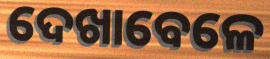
ଦେଖାବେଳେ